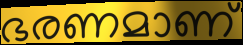
ഭരണമാണ്